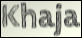
Khaja